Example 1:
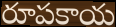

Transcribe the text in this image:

రూపకాయ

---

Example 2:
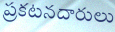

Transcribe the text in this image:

ప్రకటనదారులు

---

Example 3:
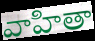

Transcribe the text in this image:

వాహితా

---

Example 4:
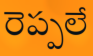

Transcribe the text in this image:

రెప్పలే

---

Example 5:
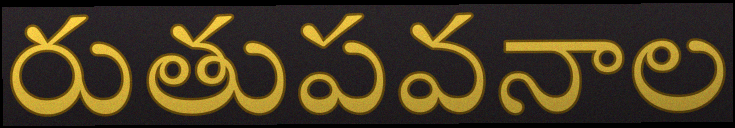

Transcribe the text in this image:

రుతుపవనాల